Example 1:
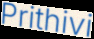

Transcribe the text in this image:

Prithivi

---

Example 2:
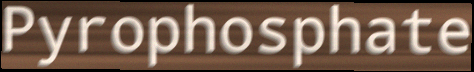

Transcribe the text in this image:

Pyrophosphate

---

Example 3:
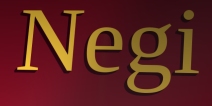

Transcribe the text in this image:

Negi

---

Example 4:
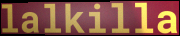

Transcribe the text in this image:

lalkilla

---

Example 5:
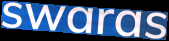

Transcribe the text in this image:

swaras